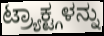
ಟ್ರ್ಯಾಕ್ಟ್ಗಳನ್ನು